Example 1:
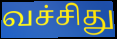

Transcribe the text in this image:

வச்சிது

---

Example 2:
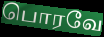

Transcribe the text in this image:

பொரவே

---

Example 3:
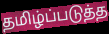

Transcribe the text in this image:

தமிழ்ப்படுத்த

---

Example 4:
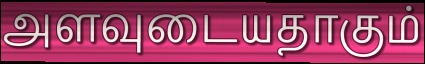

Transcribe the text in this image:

அளவுடையதாகும்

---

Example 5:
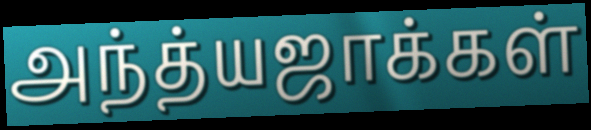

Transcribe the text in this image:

அந்த்யஜாக்கள்